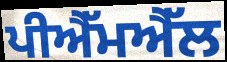
ਪੀਐੱਮਐੱਲ